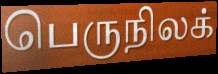
பெருநிலக்